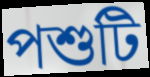
পশুটি